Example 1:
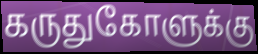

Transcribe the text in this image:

கருதுகோளுக்கு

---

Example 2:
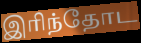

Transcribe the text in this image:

இரிந்தோட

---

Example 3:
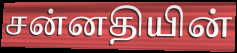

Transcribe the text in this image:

சன்னதியின்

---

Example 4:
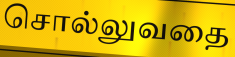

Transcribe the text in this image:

சொல்லுவதை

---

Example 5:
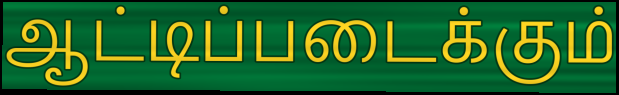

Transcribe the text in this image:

ஆட்டிப்படைக்கும்